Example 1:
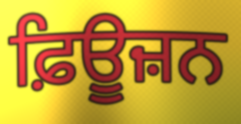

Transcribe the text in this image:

ਫ਼ਿਊਜ਼ਨ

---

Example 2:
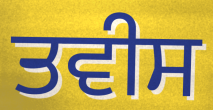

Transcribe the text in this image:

ਤਵੀਸ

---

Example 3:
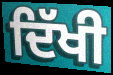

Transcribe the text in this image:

ਦਿੱਖੀ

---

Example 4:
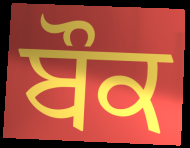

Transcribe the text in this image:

ਬੌਕ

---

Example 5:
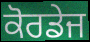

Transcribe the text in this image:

ਕੋਰਡੇਜ